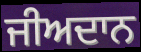
ਜੀਅਦਾਨ